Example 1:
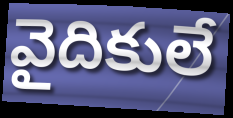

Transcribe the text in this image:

వైదికులే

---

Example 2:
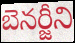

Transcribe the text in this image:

బెనర్జీని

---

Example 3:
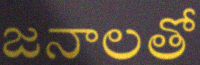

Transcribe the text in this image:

జనాలతో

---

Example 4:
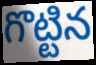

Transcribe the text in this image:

గొట్టిన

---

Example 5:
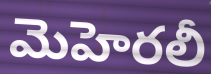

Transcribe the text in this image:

మెహెరలీ